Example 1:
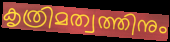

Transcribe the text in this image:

കൃത്രിമത്വത്തിനും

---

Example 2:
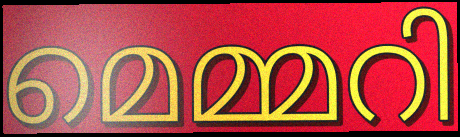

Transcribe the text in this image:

മെമ്മറി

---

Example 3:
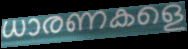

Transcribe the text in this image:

ധാരണകളെ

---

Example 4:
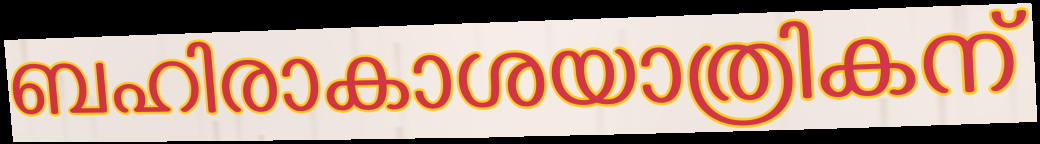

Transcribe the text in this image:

ബഹിരാകാശയാത്രികന്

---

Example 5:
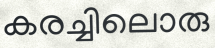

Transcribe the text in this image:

കരച്ചിലൊരു